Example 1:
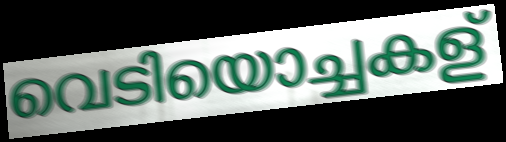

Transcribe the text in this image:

വെടിയൊച്ചകള്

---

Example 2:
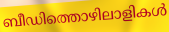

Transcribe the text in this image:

ബീഡിത്തൊഴിലാളികൾ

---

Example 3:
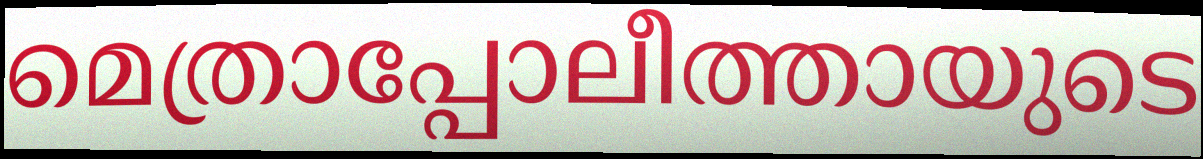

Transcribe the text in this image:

മെത്രാപ്പോലീത്തായുടെ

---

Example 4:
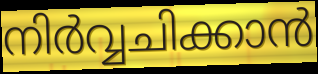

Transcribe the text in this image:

നിർവ്വചിക്കാൻ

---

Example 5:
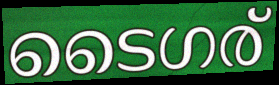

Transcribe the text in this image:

ടൈഗര്